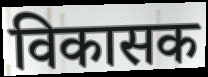
विकासक